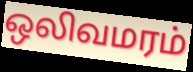
ஒலிவமரம்